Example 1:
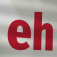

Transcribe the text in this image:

eh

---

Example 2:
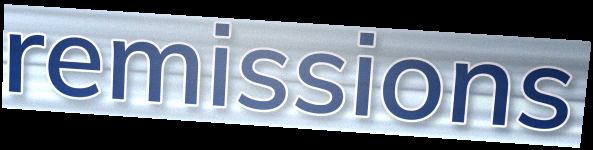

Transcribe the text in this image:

remissions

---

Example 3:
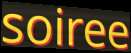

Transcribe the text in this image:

soiree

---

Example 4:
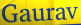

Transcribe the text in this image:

Gaurav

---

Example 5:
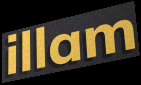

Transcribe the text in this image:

illam